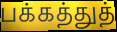
பக்கத்துத்